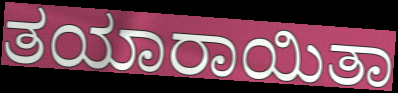
ತಯಾರಾಯಿತಾ